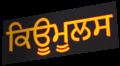
ਕਿਊਮੂਲਸ